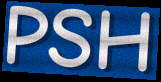
PSH